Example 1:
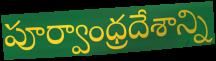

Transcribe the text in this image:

పూర్వాంధ్రదేశాన్ని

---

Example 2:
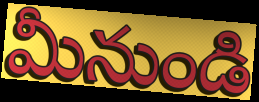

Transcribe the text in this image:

మీనుండి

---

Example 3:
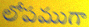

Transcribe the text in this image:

లోపముగా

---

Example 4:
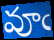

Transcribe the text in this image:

వూఁ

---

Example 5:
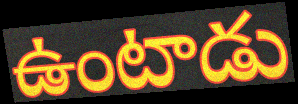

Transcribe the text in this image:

ఉంటాడు